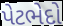
પેટભેદો